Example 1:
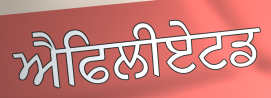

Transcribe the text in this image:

ਐਫਿਲੀਏਟਡ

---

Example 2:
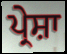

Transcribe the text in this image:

ਪ੍ਰੇਸ਼ਾ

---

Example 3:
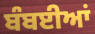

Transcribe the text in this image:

ਬੰਬਈਆਂ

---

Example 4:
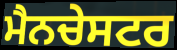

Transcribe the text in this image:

ਮੈਨਚੇਸਟਰ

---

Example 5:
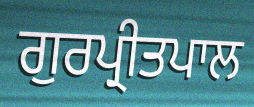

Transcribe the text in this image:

ਗੁਰਪ੍ਰੀਤਪਾਲ